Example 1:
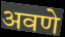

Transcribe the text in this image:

अवणे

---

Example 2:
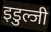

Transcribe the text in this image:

इडुल्जी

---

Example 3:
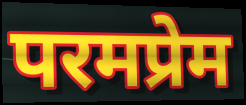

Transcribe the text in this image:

परमप्रेम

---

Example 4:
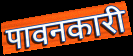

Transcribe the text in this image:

पावनकारी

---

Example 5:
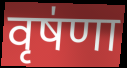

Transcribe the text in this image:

वृष॑णा